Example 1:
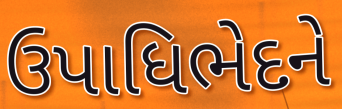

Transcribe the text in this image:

ઉપાધિભેદને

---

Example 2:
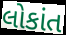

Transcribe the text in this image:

લોકાંત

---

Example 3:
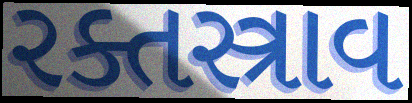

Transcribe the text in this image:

રક્તસ્ત્રાવ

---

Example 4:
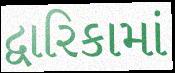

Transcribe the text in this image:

દ્વારિકામાં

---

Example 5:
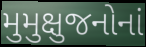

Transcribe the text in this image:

મુમુક્ષુજનોનાં